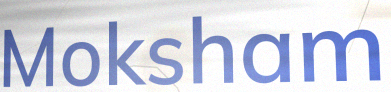
Moksham